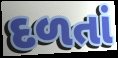
દળતાં